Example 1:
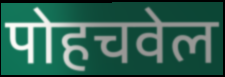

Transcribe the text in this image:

पोहचवेल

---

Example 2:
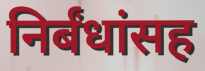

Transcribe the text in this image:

निर्बंधांसह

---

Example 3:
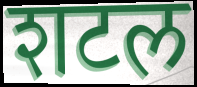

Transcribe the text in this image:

शटल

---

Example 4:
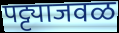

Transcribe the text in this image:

पट्ट्याजवळ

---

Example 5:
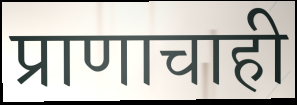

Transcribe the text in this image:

प्राणाचाही